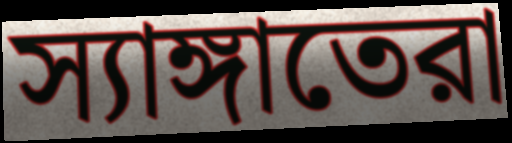
স্যাঙ্গাতেরা